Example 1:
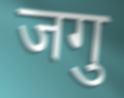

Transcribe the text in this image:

जगु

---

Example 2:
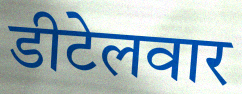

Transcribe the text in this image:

डीटेलवार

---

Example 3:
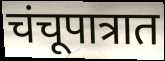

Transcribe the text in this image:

चंचूपात्रात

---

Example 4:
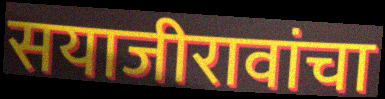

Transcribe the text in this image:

सयाजीरावांचा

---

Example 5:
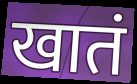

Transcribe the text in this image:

खातं